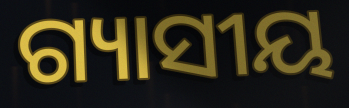
ଗ୍ୟାସୀୟ